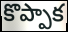
కొప్పాక